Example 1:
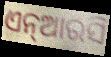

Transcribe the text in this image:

ଏନ୍ଆରସି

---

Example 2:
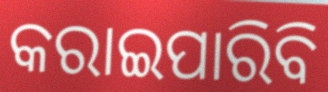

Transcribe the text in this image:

କରାଇପାରିବି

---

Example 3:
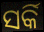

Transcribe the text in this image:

ସର୍କି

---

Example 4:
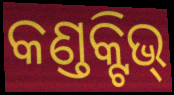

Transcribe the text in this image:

କଣ୍ଡକ୍ଟିଭ୍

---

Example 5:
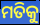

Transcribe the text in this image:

ମତିକୁ